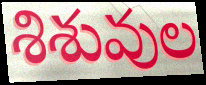
శిశువుల